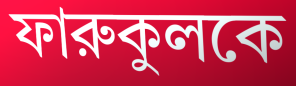
ফারুকুলকে